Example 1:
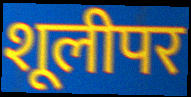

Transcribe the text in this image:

शूलीपर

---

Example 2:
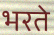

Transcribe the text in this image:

भरते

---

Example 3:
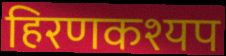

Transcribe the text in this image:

हिरणकश्यप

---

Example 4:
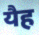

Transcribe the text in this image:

यैह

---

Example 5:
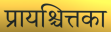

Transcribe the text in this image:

प्रायश्चित्तका